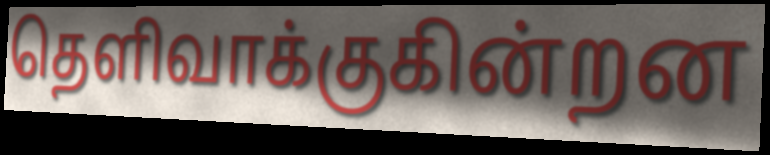
தெளிவாக்குகின்றன